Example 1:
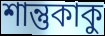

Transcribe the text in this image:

শান্তুকাকু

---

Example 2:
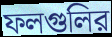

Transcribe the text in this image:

ফলগুলির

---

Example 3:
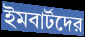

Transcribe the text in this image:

ইমবার্টদের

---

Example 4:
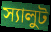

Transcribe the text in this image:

স্যালুট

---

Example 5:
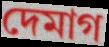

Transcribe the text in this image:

দেমাগ